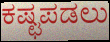
ಕಷ್ಟಪಡಲು